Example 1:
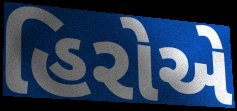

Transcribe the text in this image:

હિરોએ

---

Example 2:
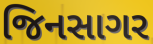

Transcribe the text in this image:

જિનસાગર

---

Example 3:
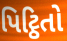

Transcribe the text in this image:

પિટ્ઠિતો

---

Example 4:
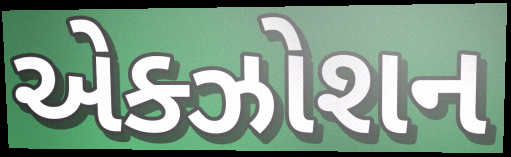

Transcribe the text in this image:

એક્ઝોશન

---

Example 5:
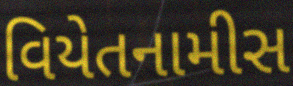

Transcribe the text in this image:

વિયેતનામીસ